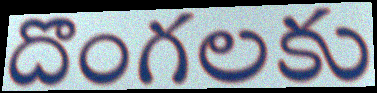
దొంగలకు